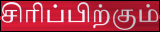
சிரிப்பிற்கும்